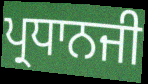
ਪ੍ਰਧਾਨਜੀ